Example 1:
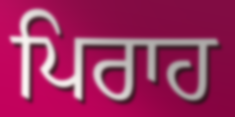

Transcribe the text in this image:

ਪਿਰਾਹ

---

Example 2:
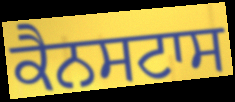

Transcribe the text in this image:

ਕੈਨਸਟਾਸ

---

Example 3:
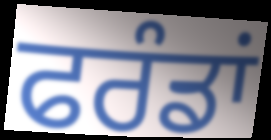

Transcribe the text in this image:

ਫਰੰਡਾਂ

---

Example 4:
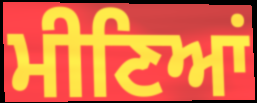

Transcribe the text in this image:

ਮੀਣਿਆਂ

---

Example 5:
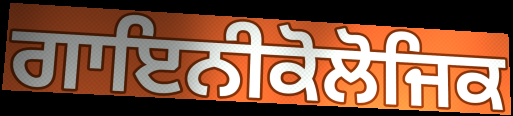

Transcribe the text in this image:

ਗਾਇਨੀਕੋਲੋਜਿਕ